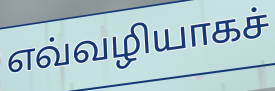
எவ்வழியாகச்